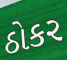
ઠોકર